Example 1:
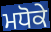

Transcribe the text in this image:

ਮਧੋਕੇ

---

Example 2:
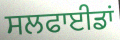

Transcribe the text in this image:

ਸਲਫਾਈਡਾਂ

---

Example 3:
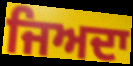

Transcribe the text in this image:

ਜਿਅਦਾ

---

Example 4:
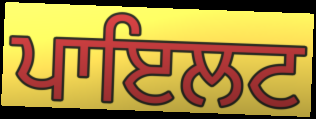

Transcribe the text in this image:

ਪਾਇਲਟ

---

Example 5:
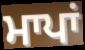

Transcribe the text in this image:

ਮਾਪਾਂ